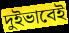
দুইভাবেই